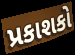
પ્રકાશકો